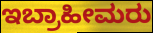
ಇಬ್ರಾಹೀಮರು